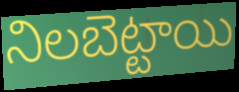
నిలబెట్టాయి